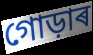
গোড়াৰ